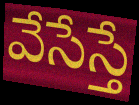
వేసేస్తే